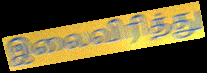
இலைவிரித்து